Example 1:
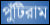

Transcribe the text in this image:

পুঁটিরাম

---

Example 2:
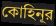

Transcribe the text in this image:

কোহিনূর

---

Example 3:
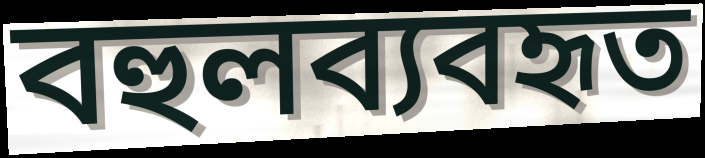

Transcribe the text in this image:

বহুলব্যবহৃত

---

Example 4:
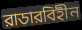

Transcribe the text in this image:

রাডারবিহীন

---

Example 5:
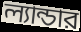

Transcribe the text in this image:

ল্যান্ডার